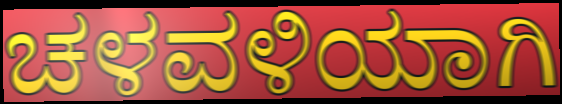
ಚಳವಳಿಯಾಗಿ